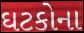
ઘટકોના